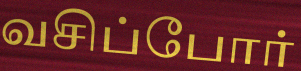
வசிப்போர்